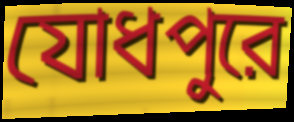
যোধপুরে